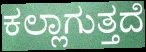
ಕಲ್ಲಾಗುತ್ತದೆ